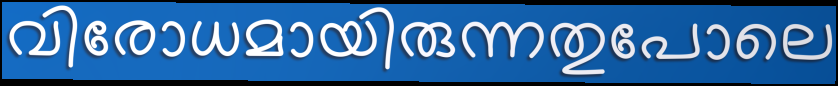
വിരോധമായിരുന്നതുപോലെ